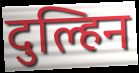
दुल्हिन